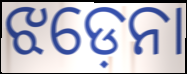
ଝଡ଼େନା